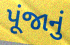
પૂંજાનું